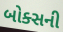
બોક્સની